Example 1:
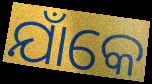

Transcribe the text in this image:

ଯାଁକେ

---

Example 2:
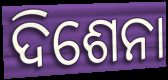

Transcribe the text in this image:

ଦିଶେନା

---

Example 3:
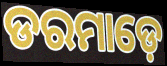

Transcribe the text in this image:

ଡରମାଡ଼େ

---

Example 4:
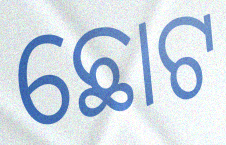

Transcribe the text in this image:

ଛୋଟ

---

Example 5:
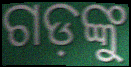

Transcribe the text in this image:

ଗଡ଼ଙ୍କୁ